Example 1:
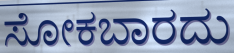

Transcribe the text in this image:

ಸೋಕಬಾರದು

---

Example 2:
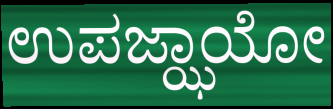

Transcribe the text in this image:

ಉಪಜ್ಝಾಯೋ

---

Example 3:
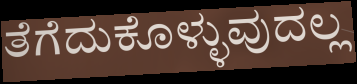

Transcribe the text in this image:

ತೆಗೆದುಕೊಳ್ಳುವುದಲ್ಲ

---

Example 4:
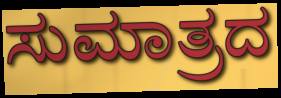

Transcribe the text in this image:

ಸುಮಾತ್ರದ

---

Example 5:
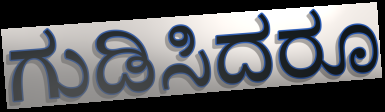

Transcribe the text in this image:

ಗುಡಿಸಿದರೂ